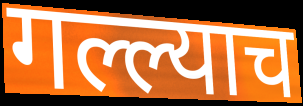
गल्ल्याच